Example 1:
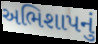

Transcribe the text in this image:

અભિશાપનું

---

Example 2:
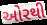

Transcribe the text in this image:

ઓરથી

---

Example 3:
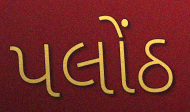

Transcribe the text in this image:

પલોંઠ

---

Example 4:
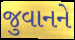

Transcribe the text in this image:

જુવાનને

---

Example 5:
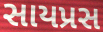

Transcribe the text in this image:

સાયપ્રસ